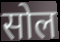
सोल